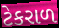
ટેકરાળ